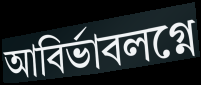
আবির্ভাবলগ্নে